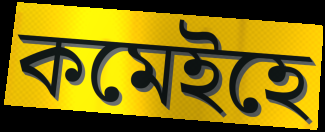
কমেইহে